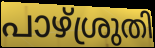
പാഴ്ശ്രുതി